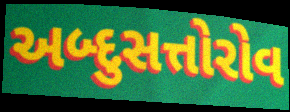
અબ્દુસત્તોરોવ